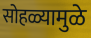
सोहळ्यामुळे